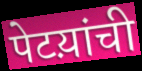
पेटय़ांची